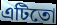
এটিতো